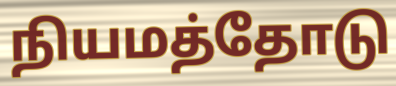
நியமத்தோடு